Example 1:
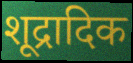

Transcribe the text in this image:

शूद्रादिक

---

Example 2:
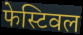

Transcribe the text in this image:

फेस्टिवल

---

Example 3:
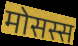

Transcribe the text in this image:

मोसस्स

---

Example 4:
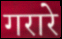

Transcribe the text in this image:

गरारे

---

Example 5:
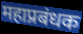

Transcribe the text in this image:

महाप्रबंधक